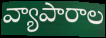
వ్యాపారాల